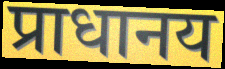
प्राधानय